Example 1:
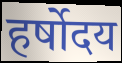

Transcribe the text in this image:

हर्षोदय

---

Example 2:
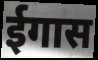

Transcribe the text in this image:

ईगास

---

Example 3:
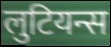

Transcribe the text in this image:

लुटियन्स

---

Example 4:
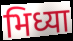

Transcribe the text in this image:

भिध्या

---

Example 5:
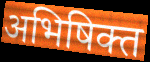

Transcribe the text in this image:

अभिषिक्त